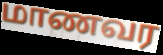
மாணவர